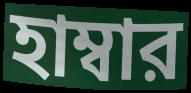
হাম্বার